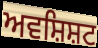
ਅਵਸ਼ਿਸ਼ਟ